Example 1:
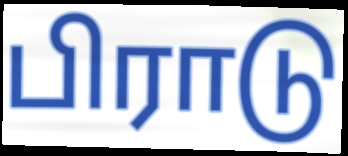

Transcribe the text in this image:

பிராடு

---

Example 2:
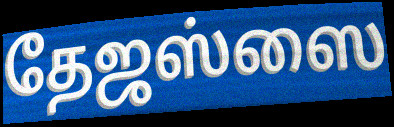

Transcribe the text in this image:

தேஜஸ்ஸை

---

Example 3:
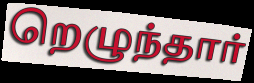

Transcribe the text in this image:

றெழுந்தார்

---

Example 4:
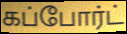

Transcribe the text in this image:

கப்போர்ட்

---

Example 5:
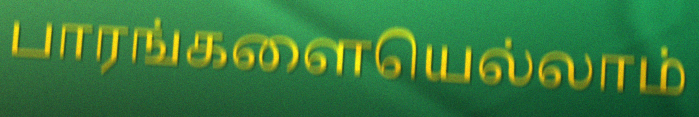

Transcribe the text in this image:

பாரங்களையெல்லாம்